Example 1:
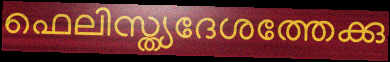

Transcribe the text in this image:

ഫെലിസ്ത്യദേശത്തേക്കു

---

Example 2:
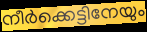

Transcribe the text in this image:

നീർക്കെട്ടിനേയും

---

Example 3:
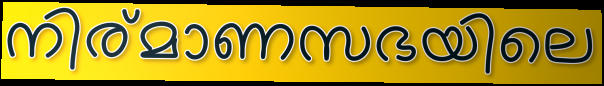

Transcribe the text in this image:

നിര്മാണസഭയിലെ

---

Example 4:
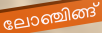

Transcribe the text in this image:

ലോഞ്ചിങ്ങ്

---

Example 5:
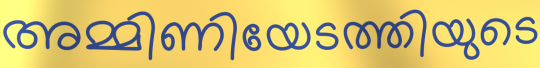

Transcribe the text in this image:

അമ്മിണിയേടത്തിയുടെ